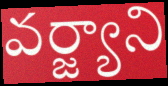
వర్జ్యాని